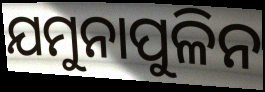
ଯମୁନାପୁଳିନ